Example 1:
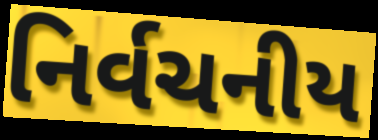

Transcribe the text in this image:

નિર્વચનીય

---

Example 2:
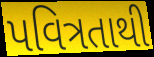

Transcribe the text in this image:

પવિત્રતાથી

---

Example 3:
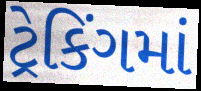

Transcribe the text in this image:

ટ્રેકિંગમાં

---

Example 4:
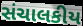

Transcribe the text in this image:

સંચાલકીય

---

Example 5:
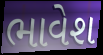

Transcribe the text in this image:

ભાવેશ